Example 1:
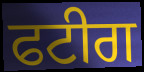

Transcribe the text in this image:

ਫਟੀਗ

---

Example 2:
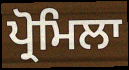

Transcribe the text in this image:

ਪ੍ਰੋਮਿਲਾ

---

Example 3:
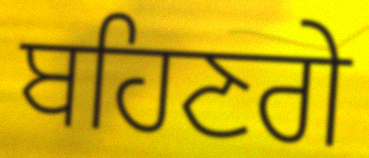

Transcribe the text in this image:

ਬਹਿਣਗੇ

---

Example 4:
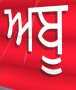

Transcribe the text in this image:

ਅਬੂ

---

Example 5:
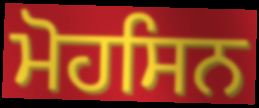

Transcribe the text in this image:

ਮੋਹਸਿਨ